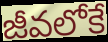
జీవలోకే